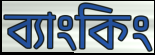
ব্যাংকিং